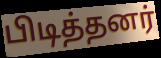
பிடித்தனர்